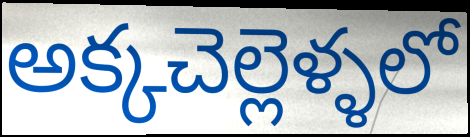
అక్కచెల్లెళ్ళలో